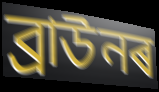
ব্ৰাউনৰ